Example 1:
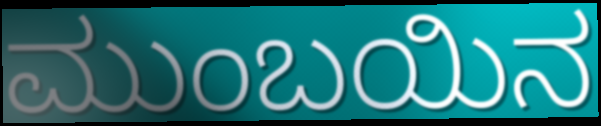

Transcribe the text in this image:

ಮುಂಬಯಿನ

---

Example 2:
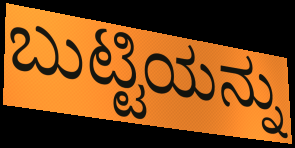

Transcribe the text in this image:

ಬುಟ್ಟಿಯನ್ನು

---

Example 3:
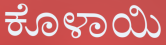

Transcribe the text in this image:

ಕೊಳಾಯಿ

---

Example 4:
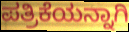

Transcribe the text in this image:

ಪತ್ರಿಕೆಯನ್ನಾಗಿ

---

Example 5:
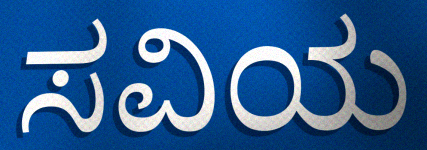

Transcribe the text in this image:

ಸವಿಯ